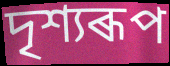
দৃশ্যৰূপ